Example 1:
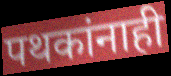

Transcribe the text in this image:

पथकांनाही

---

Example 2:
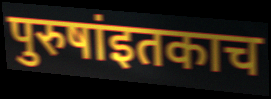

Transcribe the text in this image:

पुरुषांइतकाच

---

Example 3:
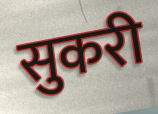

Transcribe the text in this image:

सुकरी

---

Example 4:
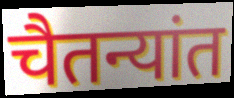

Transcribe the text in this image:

चैतन्यांत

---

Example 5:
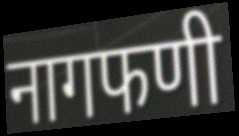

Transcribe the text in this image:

नागफणी